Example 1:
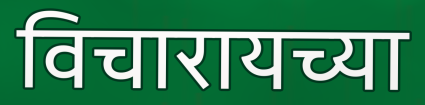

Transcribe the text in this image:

विचारायच्या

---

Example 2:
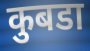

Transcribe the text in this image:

कुबडा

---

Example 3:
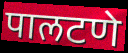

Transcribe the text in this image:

पालटणे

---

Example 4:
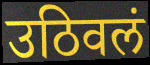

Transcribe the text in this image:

उठिवलं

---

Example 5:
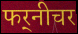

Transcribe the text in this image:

फर्नीचर